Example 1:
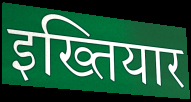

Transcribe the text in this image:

इख्तियार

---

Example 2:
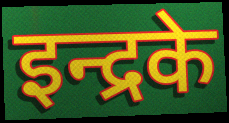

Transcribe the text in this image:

इन्द्रके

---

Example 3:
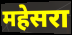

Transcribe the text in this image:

महेसरा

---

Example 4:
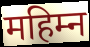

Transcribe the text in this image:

महिम्न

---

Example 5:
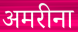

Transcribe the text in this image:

अमरीना